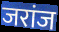
जरांज